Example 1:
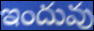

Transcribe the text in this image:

ఇందువు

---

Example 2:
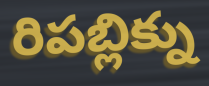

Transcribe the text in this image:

రిపబ్లిక్ను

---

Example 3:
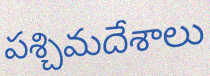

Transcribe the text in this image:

పశ్చిమదేశాలు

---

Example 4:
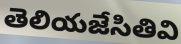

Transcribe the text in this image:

తెలియజేసితివి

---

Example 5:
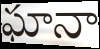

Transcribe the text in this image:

ఘానా